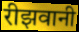
रीझवानी